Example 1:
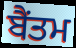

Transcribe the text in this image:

ਬੈਂਤਮ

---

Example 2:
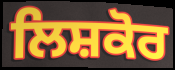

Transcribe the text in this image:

ਲਿਸ਼ਕੋਰ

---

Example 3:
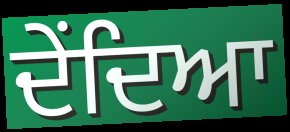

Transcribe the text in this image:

ਦੇਂਦਿਆ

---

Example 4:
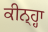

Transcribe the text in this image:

ਕੀਨ੍ਹ੍ਹਾ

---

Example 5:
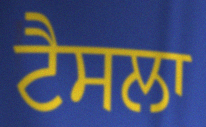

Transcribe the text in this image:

ਟੈਸਲਾ